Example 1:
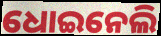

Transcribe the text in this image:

ଧୋଇନେଲି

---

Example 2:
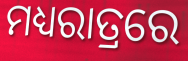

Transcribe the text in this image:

ମଧ୍ୟରାତ୍ରରେ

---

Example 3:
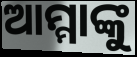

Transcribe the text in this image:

ଆମ୍ମାଙ୍କୁ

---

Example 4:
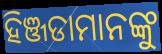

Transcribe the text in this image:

ହିଞ୍ଜଡାମାନଙ୍କୁ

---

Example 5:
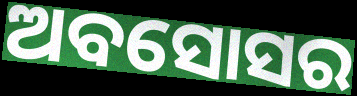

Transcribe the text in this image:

ଅବସୋସର